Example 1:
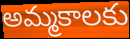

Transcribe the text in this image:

అమ్మకాలకు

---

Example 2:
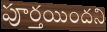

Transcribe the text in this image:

పూర్తయిందని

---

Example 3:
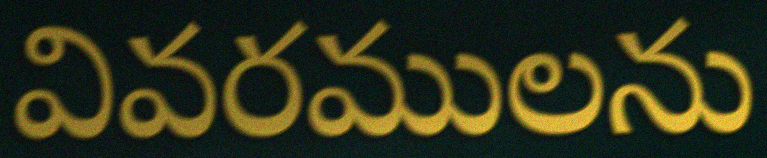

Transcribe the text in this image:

వివరములను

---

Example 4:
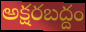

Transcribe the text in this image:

అక్షరబద్దం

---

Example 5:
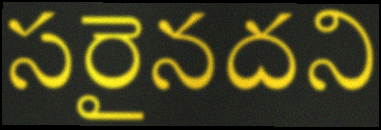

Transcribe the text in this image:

సరైనదని